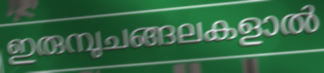
ഇരുമ്പുചങ്ങലകളാൽ